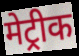
मेट्रीक